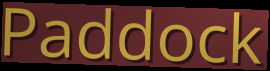
Paddock